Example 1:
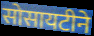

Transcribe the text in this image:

सोसायटीने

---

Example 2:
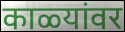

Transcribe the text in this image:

काळ्यांवर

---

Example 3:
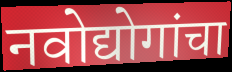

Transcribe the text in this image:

नवोद्योगांचा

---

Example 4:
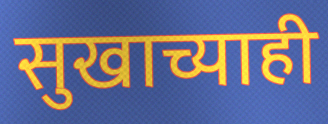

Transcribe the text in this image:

सुखाच्याही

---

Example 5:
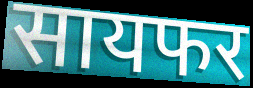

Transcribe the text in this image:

सायफर